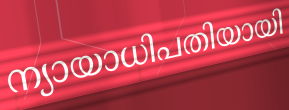
ന്യായാധിപതിയായി